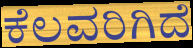
ಕೆಲವರಿಗಿದೆ